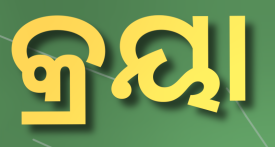
କ୍ରୟା